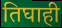
तिघाही